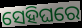
ସେହିଘରେ